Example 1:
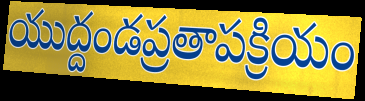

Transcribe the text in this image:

యుద్దండప్రతాపక్రియం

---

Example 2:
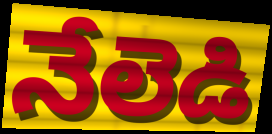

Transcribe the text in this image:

నేలెడి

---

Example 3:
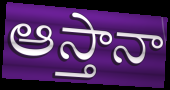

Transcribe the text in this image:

ఆస్తానా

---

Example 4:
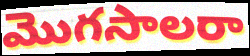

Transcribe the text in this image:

మొగసాలరా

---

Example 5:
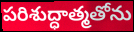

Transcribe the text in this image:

పరిశుద్ధాత్మతోను